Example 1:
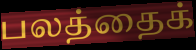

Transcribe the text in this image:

பலத்தைக்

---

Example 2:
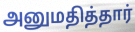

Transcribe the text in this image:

அனுமதித்தார்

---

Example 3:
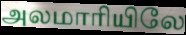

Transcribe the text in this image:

அலமாரியிலே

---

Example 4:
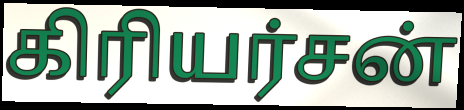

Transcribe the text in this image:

கிரியர்சன்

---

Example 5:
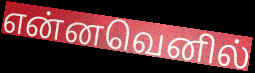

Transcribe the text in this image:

என்னவெனில்